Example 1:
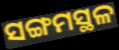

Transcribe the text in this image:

ସଙ୍ଗମସ୍ଥଳ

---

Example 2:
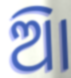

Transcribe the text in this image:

ଆି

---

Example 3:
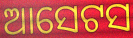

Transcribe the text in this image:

ଆସେଟସ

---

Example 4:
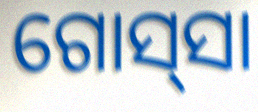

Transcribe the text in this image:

ଗୋସ୍‌ସା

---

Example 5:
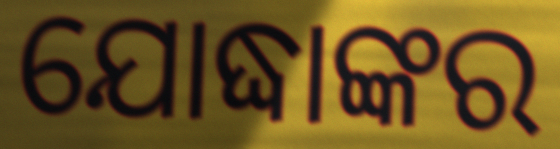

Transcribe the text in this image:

ଯୋଦ୍ଧାଙ୍କର